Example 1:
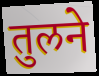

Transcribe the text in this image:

तुलने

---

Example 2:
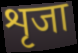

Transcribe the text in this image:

शृजा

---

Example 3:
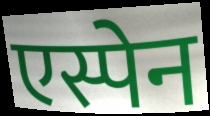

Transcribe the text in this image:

एस्पेन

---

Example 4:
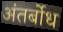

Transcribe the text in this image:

अंतर्बोध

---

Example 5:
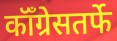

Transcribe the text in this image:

कॉँग्रेसतर्फे